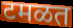
टमळत